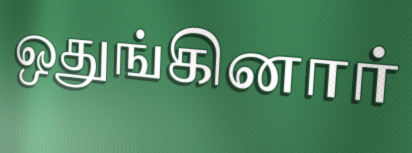
ஒதுங்கினார்